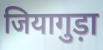
जियागुड़ा